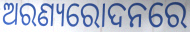
ଅରଣ୍ୟରୋଦନରେ